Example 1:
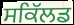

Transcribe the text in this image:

ਸਕਿੱਲਡ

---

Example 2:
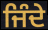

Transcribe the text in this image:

ਜਿੰਦੇ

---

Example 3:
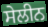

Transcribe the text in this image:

ਸੇਲੀਨ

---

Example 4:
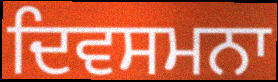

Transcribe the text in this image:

ਦਿਵਸਮਨਾ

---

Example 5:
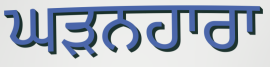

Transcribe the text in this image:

ਘੜਨਹਾਰਾ